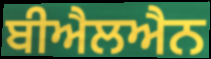
ਬੀਐਲਐਨ